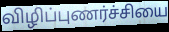
விழிப்புணர்ச்சியை